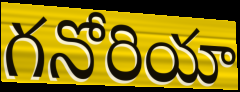
గనోరియా